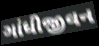
ગાંધીજીવન